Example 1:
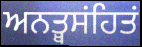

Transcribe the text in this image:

ਅਨਤ੍ਥਸਂਹਿਤਂ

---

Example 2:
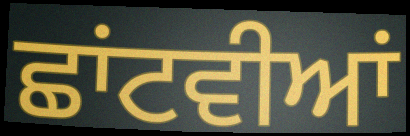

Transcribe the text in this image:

ਛਾਂਟਵੀਆਂ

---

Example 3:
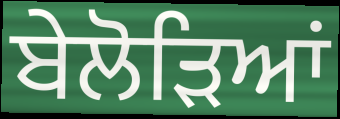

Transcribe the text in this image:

ਬੇਲੋੜਿਆਂ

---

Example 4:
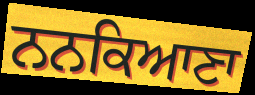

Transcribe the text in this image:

ਨਨਕਿਆਣਾ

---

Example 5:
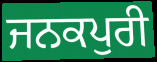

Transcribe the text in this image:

ਜਨਕਪੁਰੀ